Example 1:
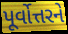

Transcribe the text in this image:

પૂર્વોત્તરને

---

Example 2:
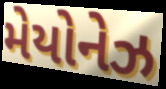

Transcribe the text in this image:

મેયોનેઝ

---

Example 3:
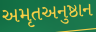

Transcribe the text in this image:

અમૃતઅનુષ્ઠાન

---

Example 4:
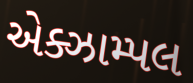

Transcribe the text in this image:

એક્ઝામ્પલ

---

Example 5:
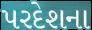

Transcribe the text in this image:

પરદેશના